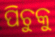
ପିଚୁକୁ